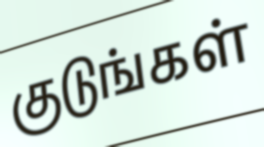
குடுங்கள்